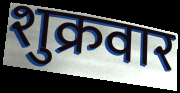
शुक्रवार